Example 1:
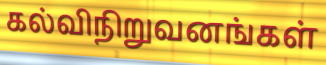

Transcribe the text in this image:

கல்விநிறுவனங்கள்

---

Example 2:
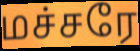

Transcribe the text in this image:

மச்சரே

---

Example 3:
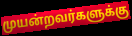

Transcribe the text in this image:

முயன்றவர்களுக்கு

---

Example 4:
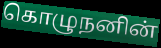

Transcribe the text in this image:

கொழுநனின்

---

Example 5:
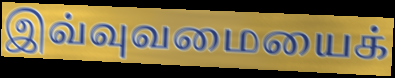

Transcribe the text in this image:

இவ்வுவமையைக்